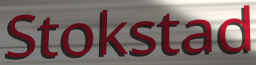
Stokstad